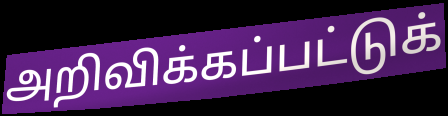
அறிவிக்கப்பட்டுக்